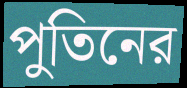
পুতিনের